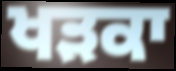
ਖੜਕਾ